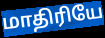
மாதிரியே